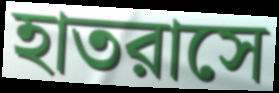
হাতরাসে